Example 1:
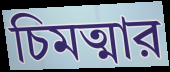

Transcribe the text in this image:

চিমত্মার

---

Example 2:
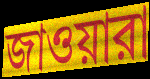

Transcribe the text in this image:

জাওয়ারা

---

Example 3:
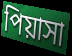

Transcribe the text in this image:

পিয়াসা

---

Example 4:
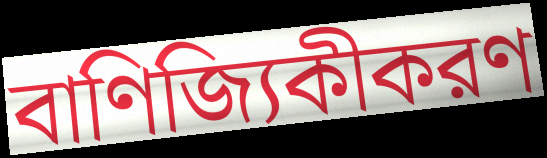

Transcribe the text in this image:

বাণিজ্যিকীকরণ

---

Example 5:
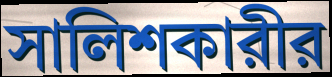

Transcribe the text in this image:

সালিশকারীর